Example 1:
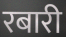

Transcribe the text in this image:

रबारी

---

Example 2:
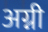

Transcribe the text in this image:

अग्नी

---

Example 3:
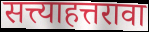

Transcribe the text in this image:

सत्त्याहत्तरावा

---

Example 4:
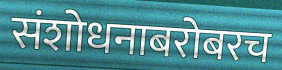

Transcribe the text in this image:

संशोधनाबरोबरच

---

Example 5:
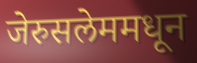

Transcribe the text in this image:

जेरुसलेममधून